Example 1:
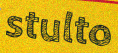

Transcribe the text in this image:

stulto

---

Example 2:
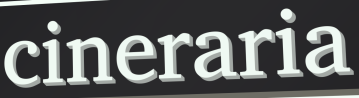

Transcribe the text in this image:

cineraria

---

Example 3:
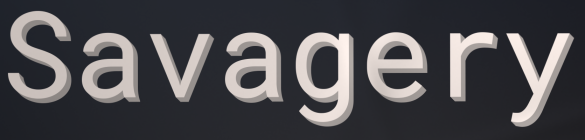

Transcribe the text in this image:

Savagery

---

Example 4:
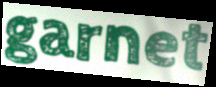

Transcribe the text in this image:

garnet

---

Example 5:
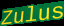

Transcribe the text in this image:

Zulus